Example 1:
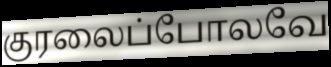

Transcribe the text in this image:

குரலைப்போலவே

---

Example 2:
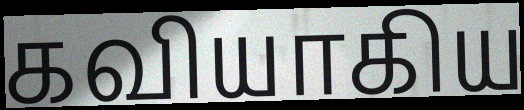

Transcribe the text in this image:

கவியாகிய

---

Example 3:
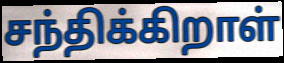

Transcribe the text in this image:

சந்திக்கிறாள்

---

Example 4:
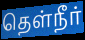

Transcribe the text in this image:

தெள்நீர்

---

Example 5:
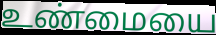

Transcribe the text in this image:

உண்மையை